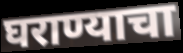
घराण्याचा